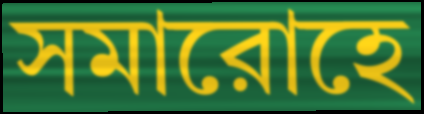
সমারোহে